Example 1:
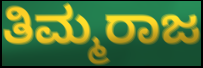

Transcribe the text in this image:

ತಿಮ್ಮರಾಜ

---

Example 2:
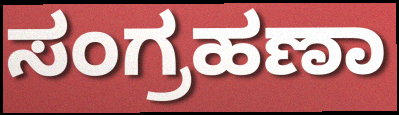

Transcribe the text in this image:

ಸಂಗ್ರಹಣಾ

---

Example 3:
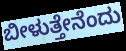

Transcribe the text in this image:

ಬೀಳುತ್ತೇನೆಂದು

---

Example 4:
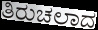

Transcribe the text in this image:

ತಿರುಚಲಾದ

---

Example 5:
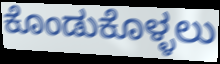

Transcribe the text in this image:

ಕೊಂಡುಕೊಳ್ಳಲು